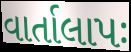
વાર્તાલાપઃ